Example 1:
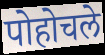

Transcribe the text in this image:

पोहोचले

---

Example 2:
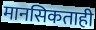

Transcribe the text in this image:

मानसिकताही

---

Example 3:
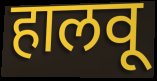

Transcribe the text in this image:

हालवू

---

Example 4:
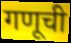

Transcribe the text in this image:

गणूची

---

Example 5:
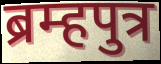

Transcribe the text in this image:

ब्रम्हपुत्र